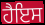
ਹੈਇਸ